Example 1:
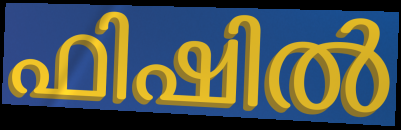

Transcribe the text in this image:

ഫിഷിൽ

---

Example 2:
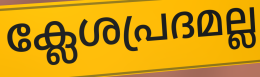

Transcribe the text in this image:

ക്ലേശപ്രദമല്ല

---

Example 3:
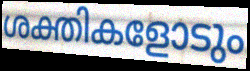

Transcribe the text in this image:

ശക്തികളോടും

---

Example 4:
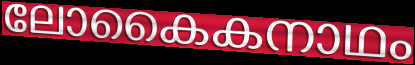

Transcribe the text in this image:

ലോകൈകനാഥം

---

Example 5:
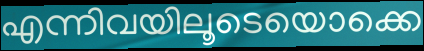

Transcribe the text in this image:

എന്നിവയിലൂടെയൊക്കെ